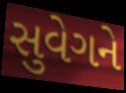
સુવેગને